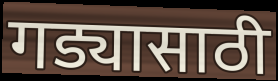
गड्यासाठी